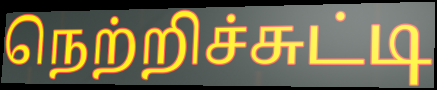
நெற்றிச்சுட்டி